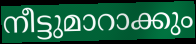
നീട്ടുമാറാക്കും